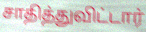
சாதித்துவிட்டார்